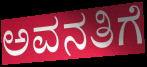
ಅವನತಿಗೆ